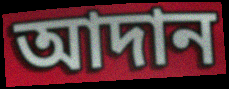
আদান